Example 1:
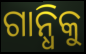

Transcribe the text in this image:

ଗାନ୍ଧିକୁ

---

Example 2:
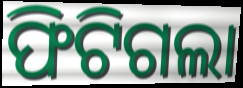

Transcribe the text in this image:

ଫିଟିଗଲା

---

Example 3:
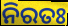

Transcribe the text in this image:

ନିରତଃ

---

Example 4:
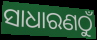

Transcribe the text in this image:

ସାଧାରଣଠୁଁ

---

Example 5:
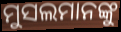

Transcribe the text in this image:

ମୁସଲମାନଙ୍କୁ